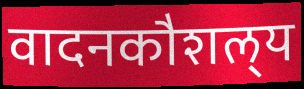
वादनकौशल्य